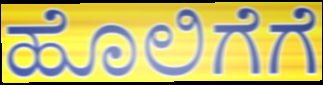
ಹೊಲಿಗೆಗೆ